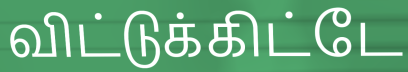
விட்டுக்கிட்டே